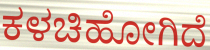
ಕಳಚಿಹೋಗಿದೆ